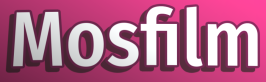
Mosfilm